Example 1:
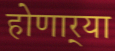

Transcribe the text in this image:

होणार्या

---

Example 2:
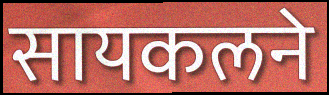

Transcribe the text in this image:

सायकलने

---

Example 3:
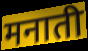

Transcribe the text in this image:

मनाती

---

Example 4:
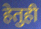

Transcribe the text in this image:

हेतुही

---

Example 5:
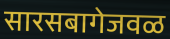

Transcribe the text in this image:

सारसबागेजवळ